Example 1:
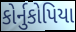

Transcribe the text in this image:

કોર્નુકોપિયા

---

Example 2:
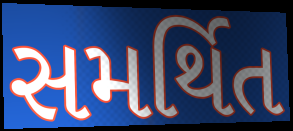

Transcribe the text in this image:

સમર્થિત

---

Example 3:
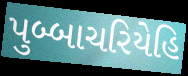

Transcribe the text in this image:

પુબ્બાચરિયેહિ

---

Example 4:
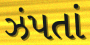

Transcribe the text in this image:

ઝંપતાં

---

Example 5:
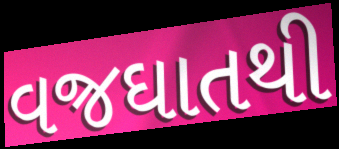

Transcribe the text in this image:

વજ્રઘાતથી